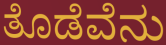
ತೊಡೆವೆನು